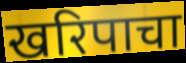
खरिपाचा